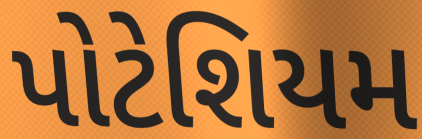
પોટેશિયમ